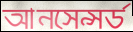
আনসেন্সর্ড